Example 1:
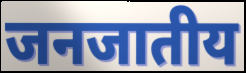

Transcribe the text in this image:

जनजातीय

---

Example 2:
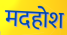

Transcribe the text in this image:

मदहोश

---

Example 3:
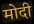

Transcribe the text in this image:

मोदी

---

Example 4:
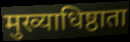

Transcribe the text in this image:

मुख्याधिष्ठाता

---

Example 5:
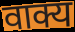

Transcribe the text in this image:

वाक्य